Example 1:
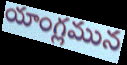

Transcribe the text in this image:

యాంగ్లమున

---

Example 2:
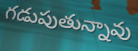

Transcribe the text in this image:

గడుపుతున్నావు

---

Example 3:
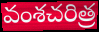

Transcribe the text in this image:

వంశచరిత్ర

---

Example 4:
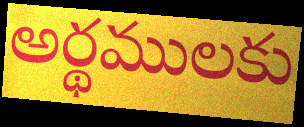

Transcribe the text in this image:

అర్థములకు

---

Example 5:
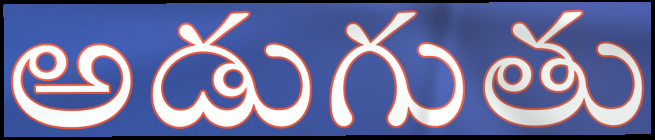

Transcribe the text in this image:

అడుగుతు